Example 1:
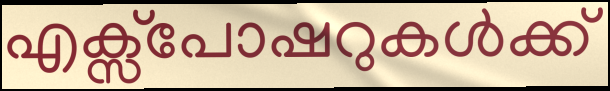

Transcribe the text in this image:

എക്സ്പോഷറുകൾക്ക്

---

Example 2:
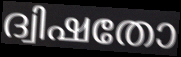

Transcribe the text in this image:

ദ്വിഷതോ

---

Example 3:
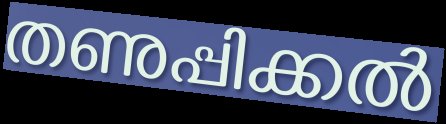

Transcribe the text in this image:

തണുപ്പിക്കൽ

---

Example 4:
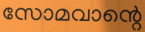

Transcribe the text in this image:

സോമവാന്റെ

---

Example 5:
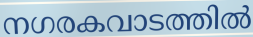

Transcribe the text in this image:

നഗരകവാടത്തിൽ